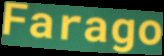
Farago